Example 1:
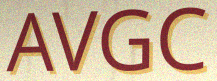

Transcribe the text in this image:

AVGC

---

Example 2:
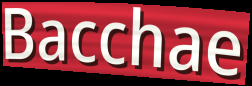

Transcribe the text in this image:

Bacchae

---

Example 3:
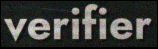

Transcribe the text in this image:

verifier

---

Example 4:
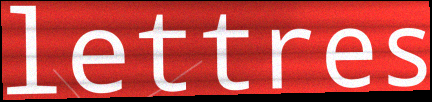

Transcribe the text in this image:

lettres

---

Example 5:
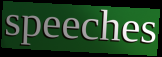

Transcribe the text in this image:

speeches